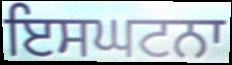
ਇਸਘਟਨਾ